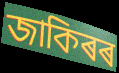
জাকিৰৰ